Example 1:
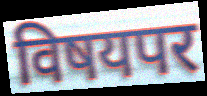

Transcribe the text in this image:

विषयपर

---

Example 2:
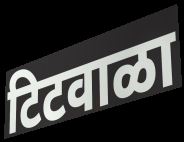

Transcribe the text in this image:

टिटवाळा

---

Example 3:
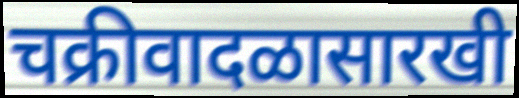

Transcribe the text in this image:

चक्रीवादळासारखी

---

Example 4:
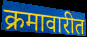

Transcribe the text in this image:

क्रमावारीत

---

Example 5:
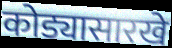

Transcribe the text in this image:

कोड्यासारखे